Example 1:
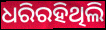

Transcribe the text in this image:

ଧରିରହିଥିଲି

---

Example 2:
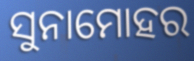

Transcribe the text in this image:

ସୁନାମୋହର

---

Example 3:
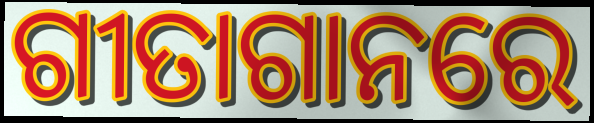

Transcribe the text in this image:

ଗୀତାଗାନରେ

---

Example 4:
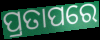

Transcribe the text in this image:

ପ୍ରତାପରେ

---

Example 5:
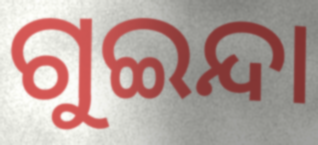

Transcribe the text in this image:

ଗୁଇନ୍ଦା